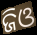
ଜିଓ